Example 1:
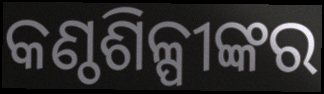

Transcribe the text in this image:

କଣ୍ଠଶିଳ୍ପୀଙ୍କର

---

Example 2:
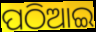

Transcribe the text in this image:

ପଠିଆଇ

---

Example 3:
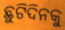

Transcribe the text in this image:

ଛୁଟିଦିନକୁ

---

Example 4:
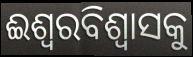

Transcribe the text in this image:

ଈଶ୍ୱରବିଶ୍ଵାସକୁ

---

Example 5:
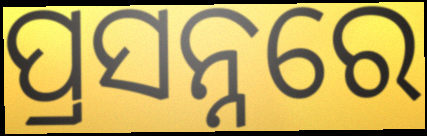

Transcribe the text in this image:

ପ୍ରସନ୍ନରେ